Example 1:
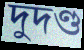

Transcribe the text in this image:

দুদণ্ড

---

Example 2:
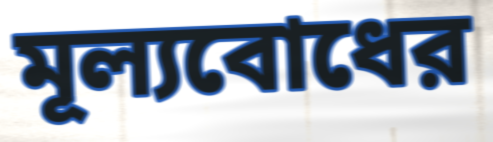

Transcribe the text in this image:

মূল্যবোধের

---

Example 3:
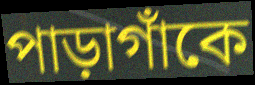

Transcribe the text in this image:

পাড়াগাঁকে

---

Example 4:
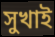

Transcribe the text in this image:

সুখাই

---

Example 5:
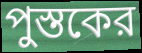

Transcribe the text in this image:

পুস্তকের